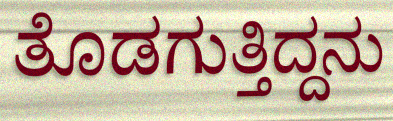
ತೊಡಗುತ್ತಿದ್ದನು